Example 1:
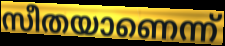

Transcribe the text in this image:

സീതയാണെന്ന്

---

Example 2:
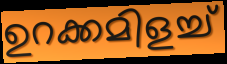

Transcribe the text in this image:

ഉറക്കമിളച്ച്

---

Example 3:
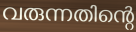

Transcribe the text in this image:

വരുന്നതിന്റെ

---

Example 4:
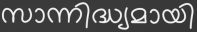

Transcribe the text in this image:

സാന്നിദ്ധ്യമായി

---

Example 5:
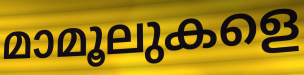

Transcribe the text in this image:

മാമൂലുകളെ